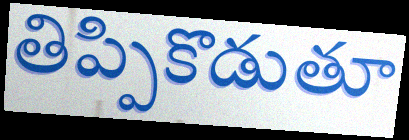
తిప్పికొడుతూ